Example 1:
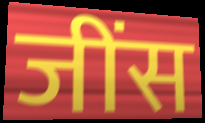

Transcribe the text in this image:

जींस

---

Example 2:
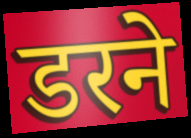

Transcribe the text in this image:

डरने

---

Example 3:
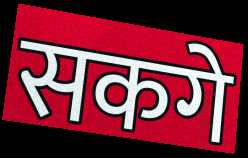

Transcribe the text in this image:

सकगे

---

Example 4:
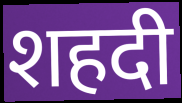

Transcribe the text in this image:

शहदी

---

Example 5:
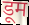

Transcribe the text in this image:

डूम